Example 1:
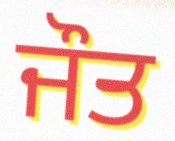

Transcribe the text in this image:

ਜੌਤ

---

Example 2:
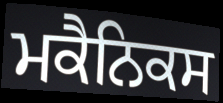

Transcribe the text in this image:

ਮਕੈਨਿਕਸ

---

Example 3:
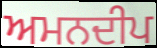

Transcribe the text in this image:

ਅਮਨਦੀਪ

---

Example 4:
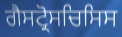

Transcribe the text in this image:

ਗੈਸਟ੍ਰੋਸਚਿਸਿਸ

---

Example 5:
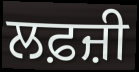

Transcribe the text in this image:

ਲਫ਼ਜ਼ੀ